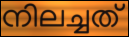
നിലച്ചത്